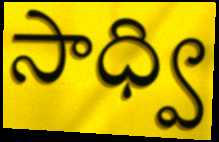
సాధ్వి